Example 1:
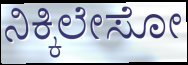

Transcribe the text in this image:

ನಿಕ್ಕಿಲೇಸೋ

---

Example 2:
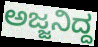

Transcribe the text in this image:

ಅಜ್ಜನಿದ್ದ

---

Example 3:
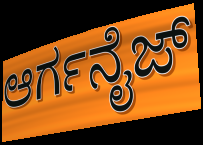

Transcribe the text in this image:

ಆರ್ಗನೈಜ್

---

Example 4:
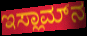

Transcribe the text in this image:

ಇಸ್ಲಾಮ್‌ನ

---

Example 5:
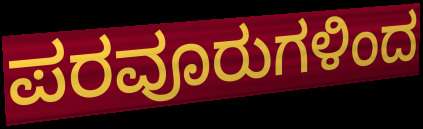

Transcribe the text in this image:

ಪರವೂರುಗಳಿಂದ